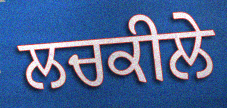
ਲਚਕੀਲੇ